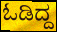
ಓಡಿದ್ದ